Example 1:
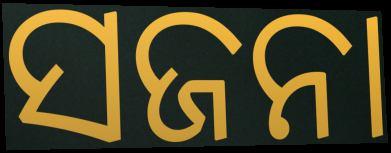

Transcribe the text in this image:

ସଜନା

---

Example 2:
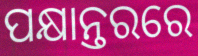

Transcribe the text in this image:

ପକ୍ଷାନ୍ତରରେ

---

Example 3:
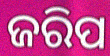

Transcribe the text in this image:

ଜରିପ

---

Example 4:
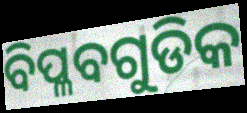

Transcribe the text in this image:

ବିପ୍ଳବଗୁଡିକ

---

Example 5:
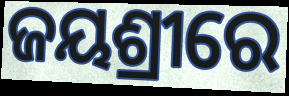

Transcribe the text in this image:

ଜୟଶ୍ରୀରେ